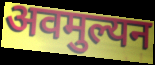
अवमुल्यन